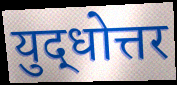
युद्धोत्तर